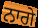
ਨਾਗੇ